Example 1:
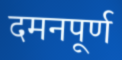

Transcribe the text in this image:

दमनपूर्ण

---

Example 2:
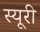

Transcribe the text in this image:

स्यूरी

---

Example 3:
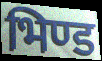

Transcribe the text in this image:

भिण्‍ड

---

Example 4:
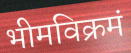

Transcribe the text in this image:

भीमविक्रमं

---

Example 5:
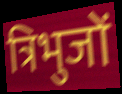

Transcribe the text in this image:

त्रिभुजों